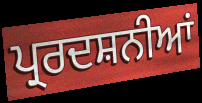
ਪ੍ਰਰਦਸ਼ਨੀਆਂ